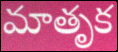
మాతృక